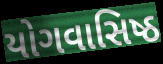
યોગવાસિષ્ઠ